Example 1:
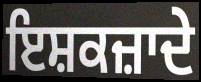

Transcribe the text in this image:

ਇਸ਼ਕਜ਼ਾਦੇ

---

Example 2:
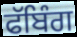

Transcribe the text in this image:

ਫੱਬਿੰਗ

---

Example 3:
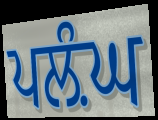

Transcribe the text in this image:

ਪਲ਼ੰਘ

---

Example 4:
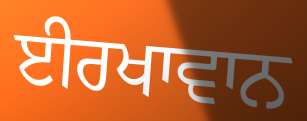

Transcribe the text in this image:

ਈਰਖਾਵਾਨ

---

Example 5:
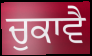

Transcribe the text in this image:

ਚੁਕਾਵੈ